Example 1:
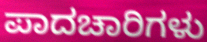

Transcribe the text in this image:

ಪಾದಚಾರಿಗಳು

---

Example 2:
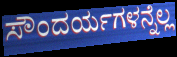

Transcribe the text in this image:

ಸೌಂದರ್ಯಗಳನ್ನೆಲ್ಲ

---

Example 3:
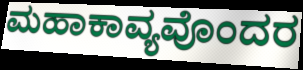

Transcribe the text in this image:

ಮಹಾಕಾವ್ಯವೊಂದರ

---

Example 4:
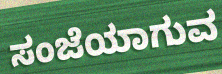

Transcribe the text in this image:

ಸಂಜೆಯಾಗುವ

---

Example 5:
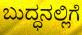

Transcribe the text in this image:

ಬುದ್ಧನಲ್ಲಿಗೆ